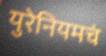
युरेनियमचं